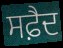
ਸਫ਼ੈਦ